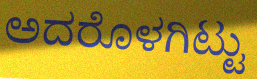
ಅದರೊಳಗಿಟ್ಟು